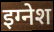
इग्नेश